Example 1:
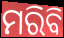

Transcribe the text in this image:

ମରିବି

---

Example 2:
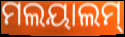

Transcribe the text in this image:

ମଲୟାଲମ୍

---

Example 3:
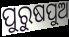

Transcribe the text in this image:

ପୁରୁଷପୁଅ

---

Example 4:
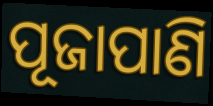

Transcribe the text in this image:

ପୂଜାପାଣି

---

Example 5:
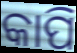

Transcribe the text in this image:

କାପି